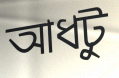
আধটু